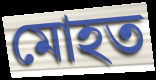
মোহত